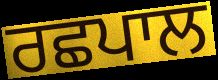
ਰਛਪਾਲ